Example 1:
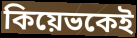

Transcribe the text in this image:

কিয়েভকেই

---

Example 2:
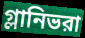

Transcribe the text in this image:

গ্লানিভরা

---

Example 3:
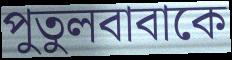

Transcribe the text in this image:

পুতুলবাবাকে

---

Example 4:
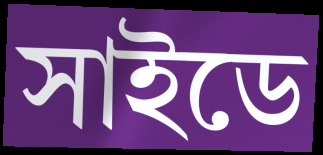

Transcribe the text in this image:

সাইডে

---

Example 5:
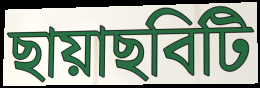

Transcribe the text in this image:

ছায়াছবিটি